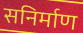
सनिर्माण